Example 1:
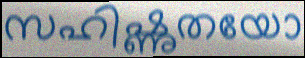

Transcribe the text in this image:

സഹിഷ്ണുതയോ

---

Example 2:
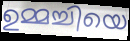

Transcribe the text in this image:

ഉമ്മച്ചിയെ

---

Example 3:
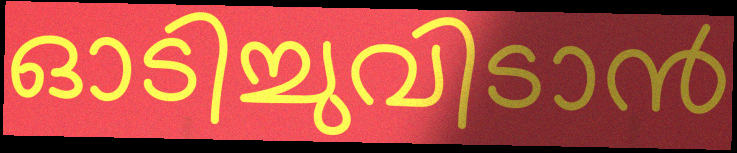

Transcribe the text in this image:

ഓടിച്ചുവിടാൻ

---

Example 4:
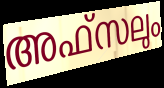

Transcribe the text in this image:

അഫ്സലും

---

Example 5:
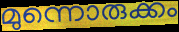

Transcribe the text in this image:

മുന്നൊരുക്കം